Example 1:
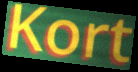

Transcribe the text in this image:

Kort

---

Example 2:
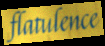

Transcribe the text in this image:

flatulence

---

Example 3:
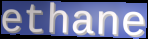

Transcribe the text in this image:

ethane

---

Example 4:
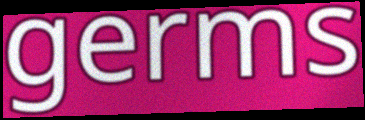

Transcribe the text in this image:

germs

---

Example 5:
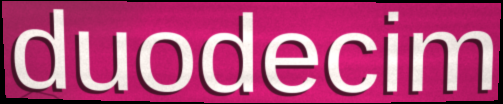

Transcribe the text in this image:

duodecim